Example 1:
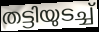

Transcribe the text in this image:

തട്ടിയുടച്ച്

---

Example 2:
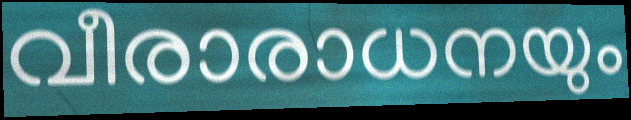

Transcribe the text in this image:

വീരാരാധനയും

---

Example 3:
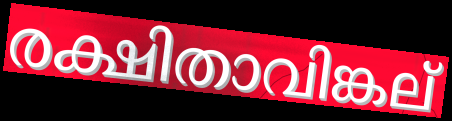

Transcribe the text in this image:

രക്ഷിതാവിങ്കല്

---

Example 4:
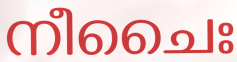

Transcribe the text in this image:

നീചൈഃ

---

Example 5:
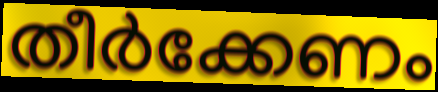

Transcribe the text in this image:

തീർക്കേണം